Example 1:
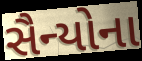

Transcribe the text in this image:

સૈન્યોના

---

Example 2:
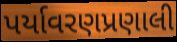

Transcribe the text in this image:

પર્યાવરણપ્રણાલી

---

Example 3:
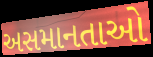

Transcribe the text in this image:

અસમાનતાઓ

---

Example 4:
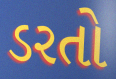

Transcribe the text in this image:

ડરતો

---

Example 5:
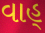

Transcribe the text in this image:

વાહ્